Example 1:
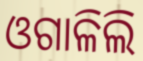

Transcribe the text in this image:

ଓଗାଳିଲି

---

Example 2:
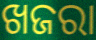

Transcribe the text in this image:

ଖଜରା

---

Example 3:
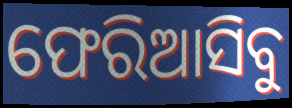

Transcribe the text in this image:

ଫେରିଆସିବୁ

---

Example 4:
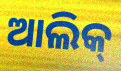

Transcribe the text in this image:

ଆଲିକ୍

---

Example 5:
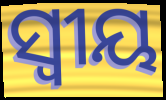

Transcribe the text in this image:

ସ୍ବୀୟ